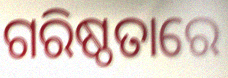
ଗରିଷ୍ଠତାରେ